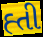
હ્તી